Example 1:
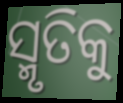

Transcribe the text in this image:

ସ୍ମୃତିକୁ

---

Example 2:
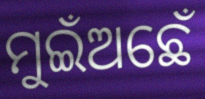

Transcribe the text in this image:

ମୁଇଁଅଛେଁ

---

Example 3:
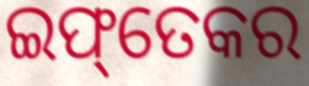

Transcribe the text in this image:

ଇଫ୍‌ତେକର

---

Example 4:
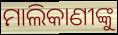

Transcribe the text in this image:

ମାଲିକାଣୀଙ୍କୁ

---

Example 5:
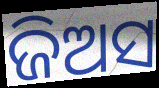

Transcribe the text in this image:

ଜିଅସ